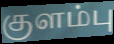
குளம்பு